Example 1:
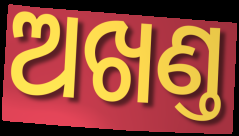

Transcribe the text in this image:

ଅଖଣ୍ତ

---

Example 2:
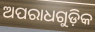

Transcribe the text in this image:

ଅପରାଧଗୁଡ଼ିକ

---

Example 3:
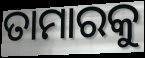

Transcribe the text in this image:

ତାମାରକୁ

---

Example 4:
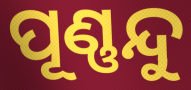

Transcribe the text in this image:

ପୂଣ୍ଣନ୍ଦୁ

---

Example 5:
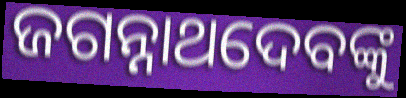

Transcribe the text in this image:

ଜଗନ୍ନାଥଦେବଙ୍କୁ